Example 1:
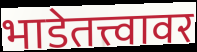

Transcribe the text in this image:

भाडेतत्त्वावर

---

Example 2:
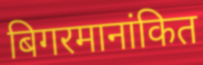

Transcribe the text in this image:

बिगरमानांकित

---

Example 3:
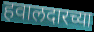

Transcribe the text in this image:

हवालदारच्या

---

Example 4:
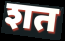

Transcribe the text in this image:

शत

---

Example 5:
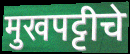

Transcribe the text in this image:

मुखपट्टीचे